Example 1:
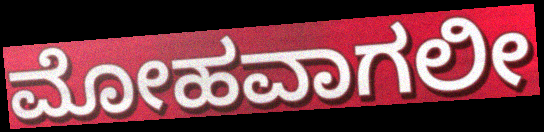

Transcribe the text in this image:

ಮೋಹವಾಗಲೀ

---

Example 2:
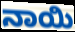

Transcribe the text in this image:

ನಾಯಿ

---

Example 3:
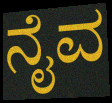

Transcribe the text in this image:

ನೈವ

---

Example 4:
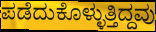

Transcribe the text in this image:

ಪಡೆದುಕೊಳ್ಳುತ್ತಿದ್ದವು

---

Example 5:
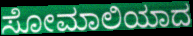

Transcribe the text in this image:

ಸೋಮಾಲಿಯಾದ